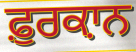
ਫ਼ੁਰਕ਼ਾਨ